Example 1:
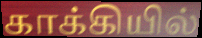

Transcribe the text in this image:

காக்கியில்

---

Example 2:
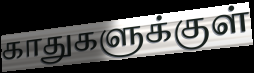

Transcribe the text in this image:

காதுகளுக்குள்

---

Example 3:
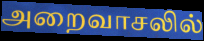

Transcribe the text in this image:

அறைவாசலில்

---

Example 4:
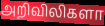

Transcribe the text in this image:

அறிவிலிகளா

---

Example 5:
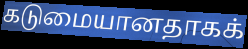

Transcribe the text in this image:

கடுமையானதாகக்